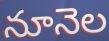
నూనెల